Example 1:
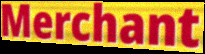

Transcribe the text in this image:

Merchant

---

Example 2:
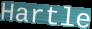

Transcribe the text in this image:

Hartle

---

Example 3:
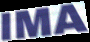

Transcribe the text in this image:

IMA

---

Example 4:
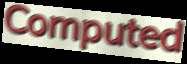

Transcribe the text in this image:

Computed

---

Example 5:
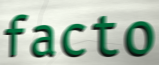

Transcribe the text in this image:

facto